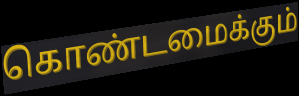
கொண்டமைக்கும்